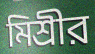
মিশ্রীর